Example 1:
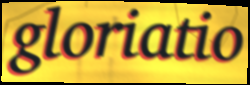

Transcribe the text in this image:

gloriatio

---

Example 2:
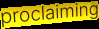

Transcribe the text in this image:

proclaiming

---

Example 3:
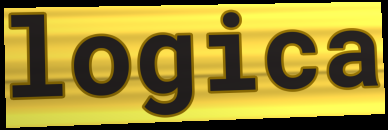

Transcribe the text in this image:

logica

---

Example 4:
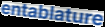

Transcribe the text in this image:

entablature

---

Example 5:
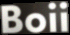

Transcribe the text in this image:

Boii